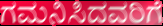
ಗಮನಿಸಿದವರಿಗೆ